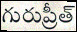
గురుప్రీత్